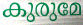
കുരുമേ